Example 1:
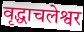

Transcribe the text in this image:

वृद्धाचलेश्वर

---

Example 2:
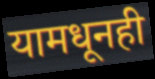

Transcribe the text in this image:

यामधूनही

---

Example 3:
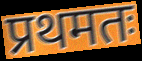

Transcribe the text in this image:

प्रथमतः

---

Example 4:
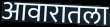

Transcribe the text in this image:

आवारातला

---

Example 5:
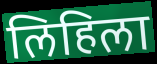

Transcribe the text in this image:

लिहिला